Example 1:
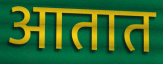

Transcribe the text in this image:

आतात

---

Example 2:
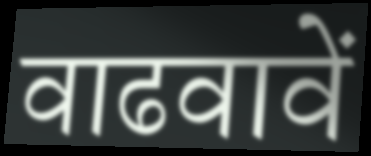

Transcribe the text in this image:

वाढवावें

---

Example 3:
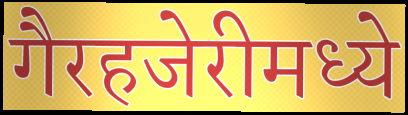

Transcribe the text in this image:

गैरहजेरीमध्ये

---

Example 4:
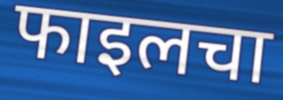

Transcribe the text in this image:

फाइलचा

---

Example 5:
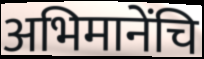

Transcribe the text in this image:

अभिमानेंचि